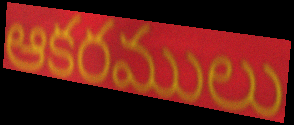
ఆకరములు